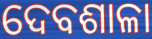
ଦେବଶାଳା